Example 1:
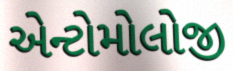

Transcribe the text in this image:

એન્ટોમોલોજી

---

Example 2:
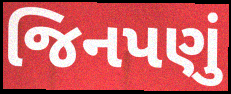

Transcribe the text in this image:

જિનપણું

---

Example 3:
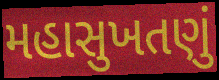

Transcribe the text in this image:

મહાસુખતણું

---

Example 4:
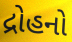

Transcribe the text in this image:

દ્રોહનો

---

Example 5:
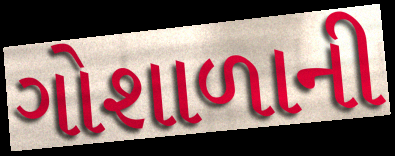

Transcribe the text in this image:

ગોશાળાની